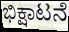
ಭಿಕ್ಷಾಟನೆ